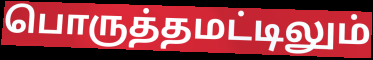
பொருத்தமட்டிலும்